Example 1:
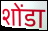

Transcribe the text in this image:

शोंडा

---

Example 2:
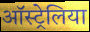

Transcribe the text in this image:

ऑस्‍ट्रेलिया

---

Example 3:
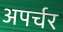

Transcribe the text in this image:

अपर्चर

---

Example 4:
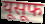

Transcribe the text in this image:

यूसूफ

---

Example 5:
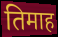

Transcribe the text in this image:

तिमाह